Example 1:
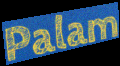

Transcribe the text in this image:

Palam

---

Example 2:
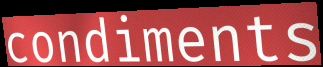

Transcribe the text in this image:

condiments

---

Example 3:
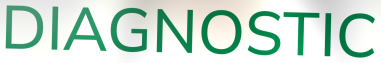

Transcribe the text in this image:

DIAGNOSTIC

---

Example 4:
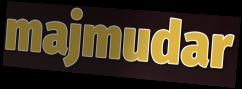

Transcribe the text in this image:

majmudar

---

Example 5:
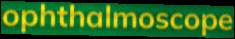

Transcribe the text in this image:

ophthalmoscope